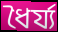
ধৈৰ্য্য